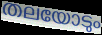
തലയോടും